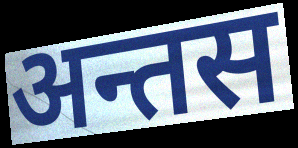
अन्तस